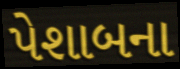
પેશાબના